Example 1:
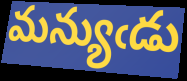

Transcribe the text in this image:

మన్యుఁడు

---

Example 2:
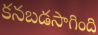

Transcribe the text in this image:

కనబడసాగింది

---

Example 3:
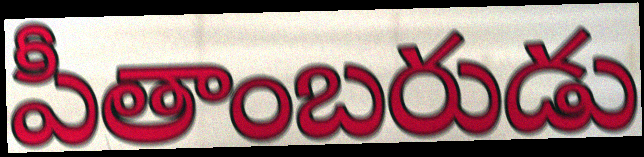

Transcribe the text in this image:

పీతాంబరుడు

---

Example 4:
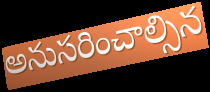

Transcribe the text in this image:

అనుసరించాల్సిన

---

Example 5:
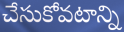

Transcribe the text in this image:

చేసుకోవటాన్ని